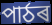
পাঠৰ